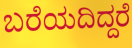
ಬರೆಯದಿದ್ದರೆ